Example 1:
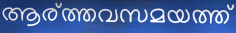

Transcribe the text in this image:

ആര്ത്തവസമയത്ത്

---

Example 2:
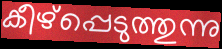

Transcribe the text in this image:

കീഴ്പ്പെടുത്തുന്നു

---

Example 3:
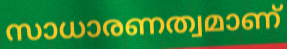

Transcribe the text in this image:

സാധാരണത്വമാണ്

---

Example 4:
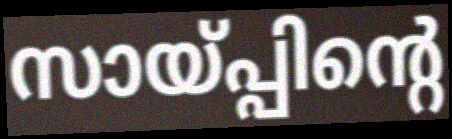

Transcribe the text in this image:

സായ്പ്പിന്റെ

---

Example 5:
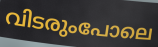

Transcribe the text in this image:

വിടരുംപോലെ